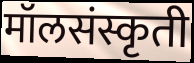
मॉलसंस्कृती